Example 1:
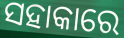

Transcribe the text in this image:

ସହାକାରେ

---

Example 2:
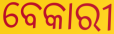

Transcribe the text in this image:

ବେକାରୀ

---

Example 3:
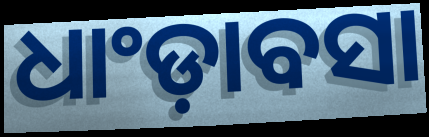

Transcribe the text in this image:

ଧାଂଡ଼ାବସା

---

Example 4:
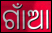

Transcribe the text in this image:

ଗାଁଆ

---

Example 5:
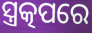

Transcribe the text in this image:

ସ୍ତ୍ରତ୍କପରେ